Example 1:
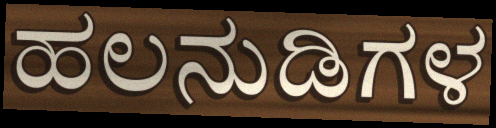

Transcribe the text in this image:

ಹಲನುಡಿಗಳ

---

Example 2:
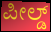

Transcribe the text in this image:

ಪೀಲ್ಡ್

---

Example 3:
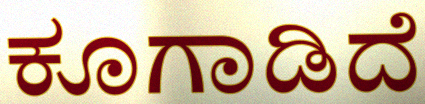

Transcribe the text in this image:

ಕೂಗಾಡಿದೆ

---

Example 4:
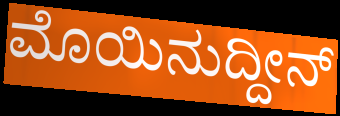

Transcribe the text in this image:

ಮೊಯಿನುದ್ದೀನ್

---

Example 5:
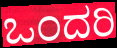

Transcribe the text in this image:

ಒಂದರಿ